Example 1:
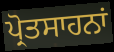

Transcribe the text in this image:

ਪ੍ਰੋਤਸਾਹਨਾਂ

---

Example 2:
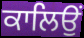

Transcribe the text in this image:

ਕਾਲਿਉਂ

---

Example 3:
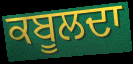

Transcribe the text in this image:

ਕਬੂਲਦਾ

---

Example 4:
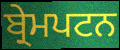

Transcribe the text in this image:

ਬ੍ਰੇਮਪਟਨ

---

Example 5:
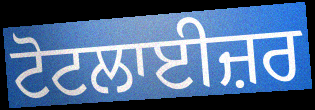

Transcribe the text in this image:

ਟੋਟਲਾਈਜ਼ਰ